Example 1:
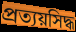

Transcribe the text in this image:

প্রত্যয়সিদ্ধ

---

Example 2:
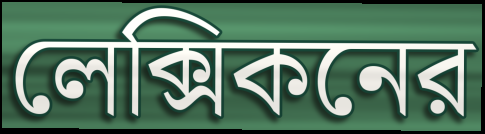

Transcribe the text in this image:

লেক্সিকনের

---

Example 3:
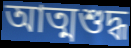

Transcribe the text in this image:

আত্মশুদ্ধ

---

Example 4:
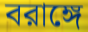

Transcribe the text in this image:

বরাঙ্গে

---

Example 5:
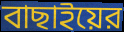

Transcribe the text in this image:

বাছাইয়ের